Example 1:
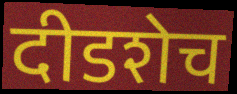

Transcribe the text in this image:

दीडशेच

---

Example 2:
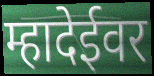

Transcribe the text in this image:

म्हादेईवर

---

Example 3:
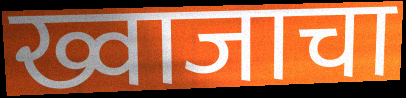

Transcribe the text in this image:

ख्वाजाचा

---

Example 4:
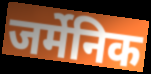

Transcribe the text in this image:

जर्मेनिक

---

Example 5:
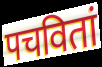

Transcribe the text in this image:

पचवितां